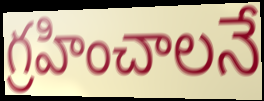
గ్రహించాలనే